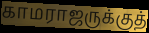
காமராஜருக்குத்